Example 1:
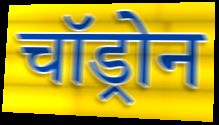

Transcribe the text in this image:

चॉड्रोन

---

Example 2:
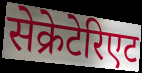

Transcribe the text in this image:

सेक्रेटेरिएट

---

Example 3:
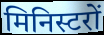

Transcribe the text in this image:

मिनिस्टरों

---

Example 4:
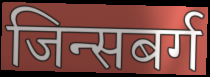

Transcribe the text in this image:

जिन्सबर्ग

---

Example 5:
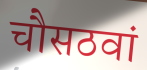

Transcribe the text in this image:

चौसठवां